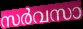
സർവസാ